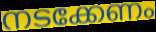
നടക്കേണം